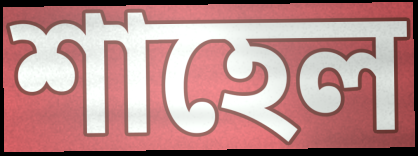
শাহেল